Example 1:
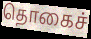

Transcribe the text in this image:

தொகைச்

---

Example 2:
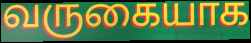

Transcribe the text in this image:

வருகையாக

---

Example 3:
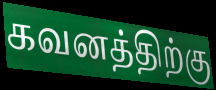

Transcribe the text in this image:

கவனத்திற்கு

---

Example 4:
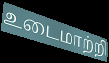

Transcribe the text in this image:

உடைமாற்றி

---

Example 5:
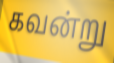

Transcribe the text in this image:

கவன்று